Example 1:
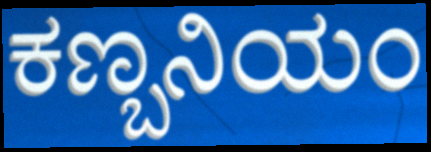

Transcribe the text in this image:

ಕಣ್ಬನಿಯಂ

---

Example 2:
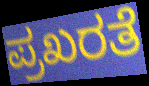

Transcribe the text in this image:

ಪ್ರಖರತೆ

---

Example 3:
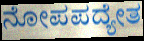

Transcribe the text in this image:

ನೋಪಪದ್ಯೇತ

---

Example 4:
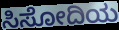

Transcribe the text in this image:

ಸಿಸೋದಿಯ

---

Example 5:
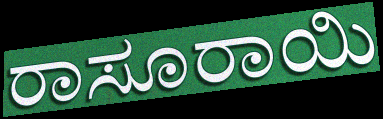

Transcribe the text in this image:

ರಾಸೂರಾಯಿ